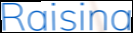
Raisina